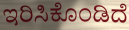
ಇರಿಸಿಕೊಂಡಿದೆ